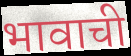
भावाची